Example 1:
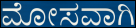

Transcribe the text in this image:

ಮೋಸವಾಗಿ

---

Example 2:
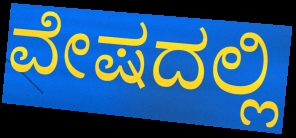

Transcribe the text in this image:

ವೇಷದಲ್ಲಿ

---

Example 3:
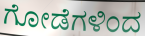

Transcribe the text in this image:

ಗೋಡೆಗಳಿಂದ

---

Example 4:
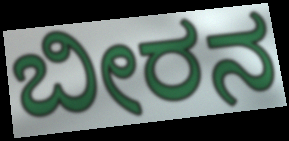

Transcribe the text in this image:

ಬೀರನ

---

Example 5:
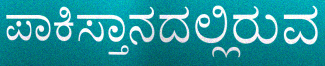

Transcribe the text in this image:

ಪಾಕಿಸ್ತಾನದಲ್ಲಿರುವ